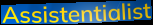
Assistentialist